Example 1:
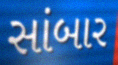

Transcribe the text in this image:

સાંબાર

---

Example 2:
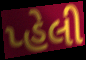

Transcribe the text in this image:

પ્હેલી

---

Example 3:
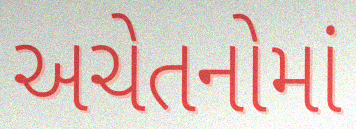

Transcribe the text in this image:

અચેતનોમાં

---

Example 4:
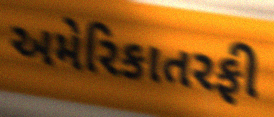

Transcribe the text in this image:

અમેરિકાતરફી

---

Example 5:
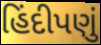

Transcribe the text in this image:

હિંદીપણું